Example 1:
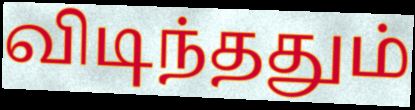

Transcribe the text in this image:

விடிந்ததும்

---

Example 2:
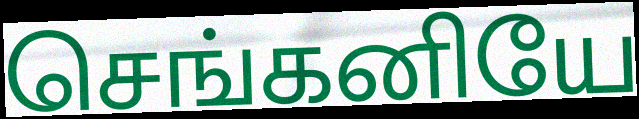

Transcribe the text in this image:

செங்கனியே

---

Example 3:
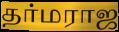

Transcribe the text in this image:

தர்மராஜ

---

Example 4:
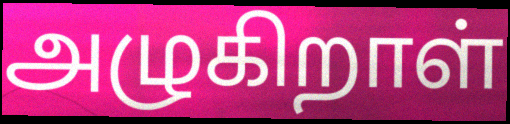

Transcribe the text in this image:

அழுகிறாள்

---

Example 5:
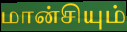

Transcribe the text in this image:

மான்சியும்